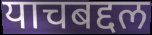
याचबद्दल